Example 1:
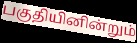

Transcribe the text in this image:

பகுதியினின்றும்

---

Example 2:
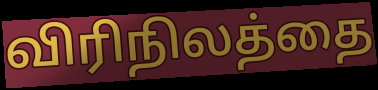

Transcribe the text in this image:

விரிநிலத்தை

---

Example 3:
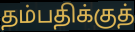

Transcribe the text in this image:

தம்பதிக்குத்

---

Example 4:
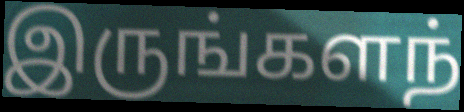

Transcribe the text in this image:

இருங்களந்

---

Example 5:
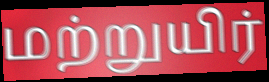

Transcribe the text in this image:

மற்றுயிர்